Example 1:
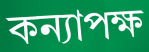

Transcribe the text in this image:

কন্যাপক্ষ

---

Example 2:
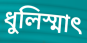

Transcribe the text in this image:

ধুলিস্মাৎ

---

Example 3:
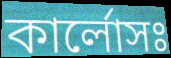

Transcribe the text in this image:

কার্লোসঃ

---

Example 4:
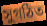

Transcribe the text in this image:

সুগঠিত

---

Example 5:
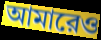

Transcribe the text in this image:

আমারেও